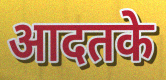
आदतके